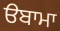
ੳਬਾਮਾ